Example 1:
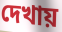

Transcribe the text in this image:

দেখায়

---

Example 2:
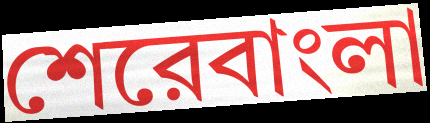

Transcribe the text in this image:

শেরেবাংলা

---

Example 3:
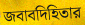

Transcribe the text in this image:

জবাবদিহিতার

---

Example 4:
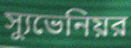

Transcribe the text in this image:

স্যুভেনিয়র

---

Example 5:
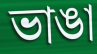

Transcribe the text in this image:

ভাঙা